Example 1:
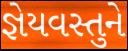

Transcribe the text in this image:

જ્ઞેયવસ્તુને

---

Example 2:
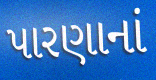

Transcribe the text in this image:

પારણાનાં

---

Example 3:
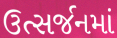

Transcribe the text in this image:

ઉત્સર્જનમાં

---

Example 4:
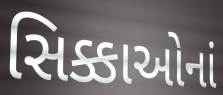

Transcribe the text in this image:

સિક્કાઓનાં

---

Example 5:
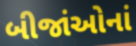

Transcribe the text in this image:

બીજાંઓનાં